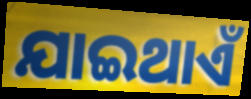
ଯାଇଥାଏଁ